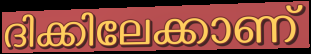
ദിക്കിലേക്കാണ്